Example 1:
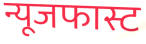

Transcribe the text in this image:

न्यूजफास्ट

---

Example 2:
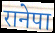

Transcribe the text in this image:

रानेपा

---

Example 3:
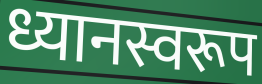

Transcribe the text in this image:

ध्यानस्वरूप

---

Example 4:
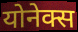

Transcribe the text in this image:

योनेक्स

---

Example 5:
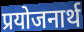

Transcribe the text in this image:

प्रयोजनार्थ